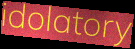
idolatory